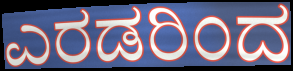
ಎರಡರಿಂದ